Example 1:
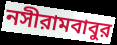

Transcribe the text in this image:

নসীরামবাবুর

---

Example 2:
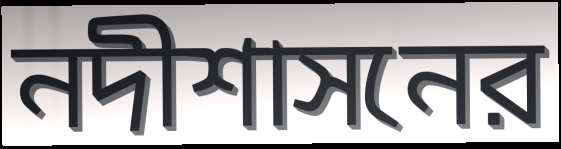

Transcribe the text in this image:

নদীশাসনের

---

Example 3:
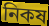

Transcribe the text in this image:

নিকষ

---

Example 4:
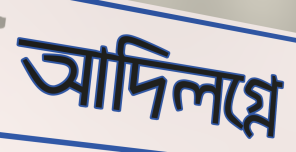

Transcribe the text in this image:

আদিলগ্নে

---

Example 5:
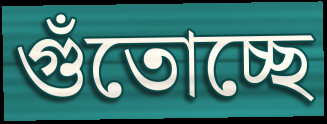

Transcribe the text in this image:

গুঁতোচ্ছে